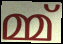
മ്മ്